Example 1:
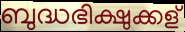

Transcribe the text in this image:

ബുദ്ധഭിക്ഷുക്കള്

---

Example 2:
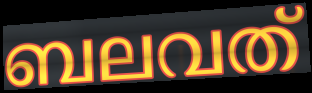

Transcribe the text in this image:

ബലവത്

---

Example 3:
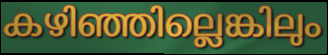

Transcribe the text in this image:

കഴിഞ്ഞില്ലെങ്കിലും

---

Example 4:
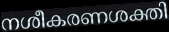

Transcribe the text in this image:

നശീകരണശക്തി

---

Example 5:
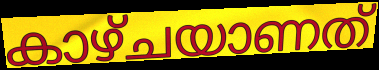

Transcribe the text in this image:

കാഴ്ചയാണത്